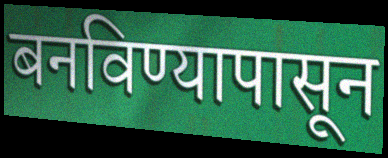
बनविण्यापासून